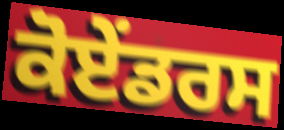
ਕੋਏਂਡਰਸ